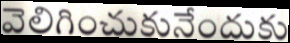
వెలిగించుకునేందుకు